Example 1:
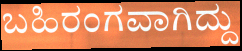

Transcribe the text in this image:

ಬಹಿರಂಗವಾಗಿದ್ದು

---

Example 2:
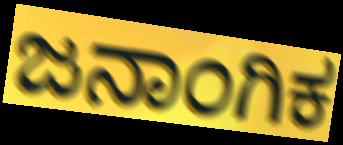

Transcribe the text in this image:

ಜನಾಂಗಿಕ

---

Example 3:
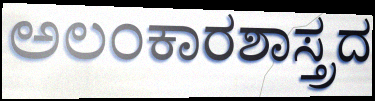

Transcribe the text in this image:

ಅಲಂಕಾರಶಾಸ್ತ್ರದ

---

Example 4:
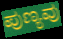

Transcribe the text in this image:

ಪುಣ್ಯವು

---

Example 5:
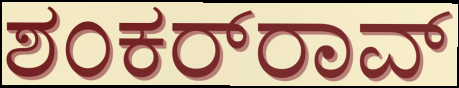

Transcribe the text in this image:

ಶಂಕರ್‌ರಾವ್